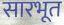
सारभूत